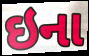
ઇના